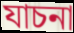
যাচনা